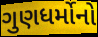
ગુણધર્મોનો